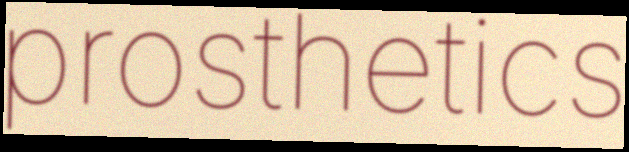
prosthetics